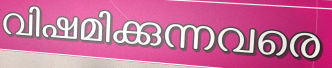
വിഷമിക്കുന്നവരെ